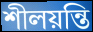
শীলয়ন্তি